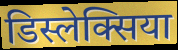
डिस्लेक्सिया